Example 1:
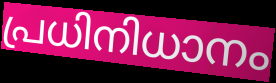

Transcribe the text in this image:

പ്രധിനിധാനം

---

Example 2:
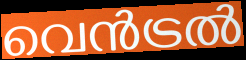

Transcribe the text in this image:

വെൻട്രൽ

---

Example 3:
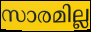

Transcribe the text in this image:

സാരമില്ല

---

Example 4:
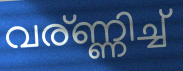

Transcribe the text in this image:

വര്ണ്ണിച്ച്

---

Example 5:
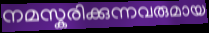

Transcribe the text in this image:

നമസ്കരിക്കുന്നവരുമായ